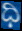
ಧಿ